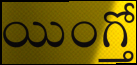
యింగ్తో